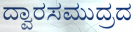
ದ್ವಾರಸಮುದ್ರದ